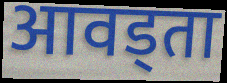
आवड्ता